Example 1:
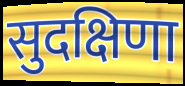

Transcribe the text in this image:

सुदक्षिणा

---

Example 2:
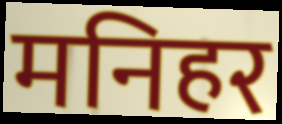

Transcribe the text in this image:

मनिहर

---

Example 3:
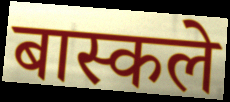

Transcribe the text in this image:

बास्कले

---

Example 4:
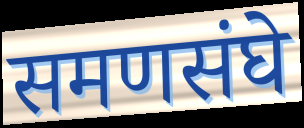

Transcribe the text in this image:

समणसंघे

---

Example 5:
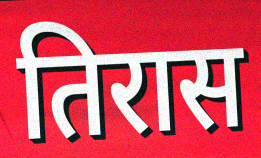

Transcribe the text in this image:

तिरास